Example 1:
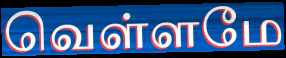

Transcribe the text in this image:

வெள்ளமே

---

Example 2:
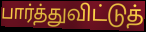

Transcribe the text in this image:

பார்த்துவிட்டுத்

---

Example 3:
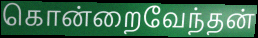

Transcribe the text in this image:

கொன்றைவேந்தன்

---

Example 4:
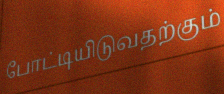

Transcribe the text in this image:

போட்டியிடுவதற்கும்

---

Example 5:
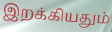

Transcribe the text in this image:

இறக்கியதும்